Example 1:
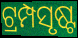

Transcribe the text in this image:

ଟ୍ରମ୍ପସୃଷ୍ଟ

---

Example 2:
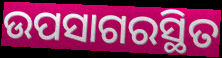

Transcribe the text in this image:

ଉପସାଗରସ୍ଥିତ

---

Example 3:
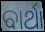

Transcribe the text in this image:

ବାର୍ଥା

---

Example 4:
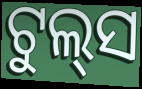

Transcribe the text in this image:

ଟୁଲ୍‌ସ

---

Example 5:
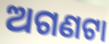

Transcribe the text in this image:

ଅଗଣଟା